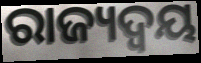
ରାଜ୍ୟଦ୍ୱୟ